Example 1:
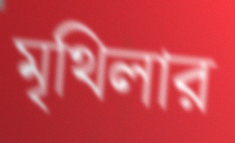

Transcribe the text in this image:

মৃথিলার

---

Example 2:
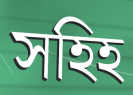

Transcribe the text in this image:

সহিহ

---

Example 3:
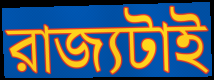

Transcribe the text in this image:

রাজ্যটাই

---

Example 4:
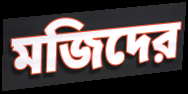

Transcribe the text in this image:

মজিদের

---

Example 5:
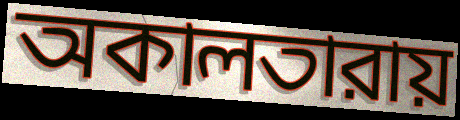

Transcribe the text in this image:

অকালতারায়